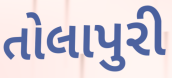
તોલાપુરી